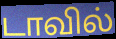
டாவில்